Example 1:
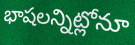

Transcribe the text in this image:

భాషలన్నిట్లోనూ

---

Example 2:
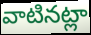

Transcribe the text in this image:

వాటినట్లా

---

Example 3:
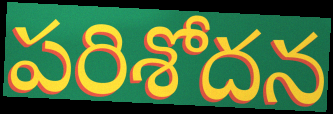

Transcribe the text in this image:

పరిశోదన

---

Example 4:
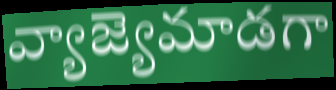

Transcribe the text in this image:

వ్యాజ్యెమాడగా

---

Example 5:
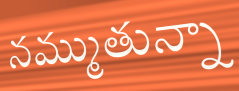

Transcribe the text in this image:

నమ్ముతున్నా